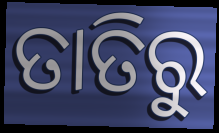
ତାତିରୁ